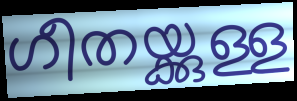
ഗീതയ്ക്കുള്ള